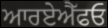
ਆਰਏਐੱਫਓ